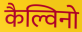
कैल्विनो